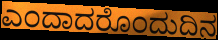
ಎಂದಾದರೊಂದುದಿನ